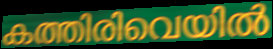
കത്തിരിവെയിൽ